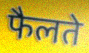
फैलते